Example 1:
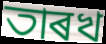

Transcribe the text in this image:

তাৰখ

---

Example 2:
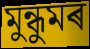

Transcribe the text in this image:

মুন্ধুমৰ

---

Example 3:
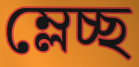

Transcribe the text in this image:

ম্লেচ্ছ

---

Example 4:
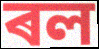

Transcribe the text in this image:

ৰল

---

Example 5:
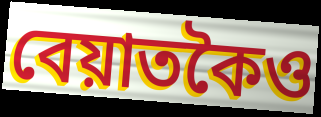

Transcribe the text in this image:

বেয়াতকৈও